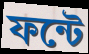
ফন্টে